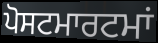
ਪੋਸਟਮਾਰਟਮਾਂ